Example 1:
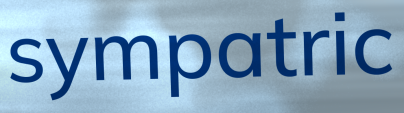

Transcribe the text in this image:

sympatric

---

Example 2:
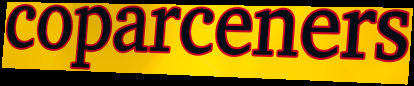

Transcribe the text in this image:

coparceners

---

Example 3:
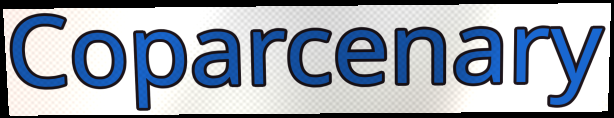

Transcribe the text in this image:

Coparcenary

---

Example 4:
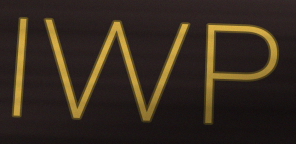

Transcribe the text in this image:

IWP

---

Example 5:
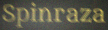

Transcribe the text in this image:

Spinraza